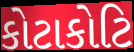
કોટાકોટિ